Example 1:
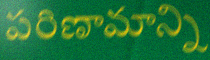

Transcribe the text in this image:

పరిణామాన్ని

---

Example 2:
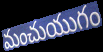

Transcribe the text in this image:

మంచుయుగం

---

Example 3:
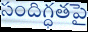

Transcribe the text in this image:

సందిగ్ధతపై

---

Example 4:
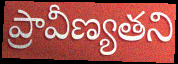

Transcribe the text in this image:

ప్రావీణ్యతని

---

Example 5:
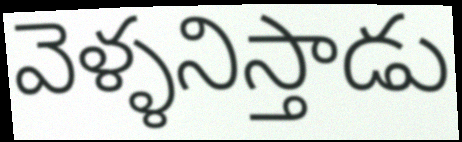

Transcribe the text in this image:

వెళ్ళనిస్తాడు